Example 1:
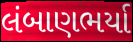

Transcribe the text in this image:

લંબાણભર્યા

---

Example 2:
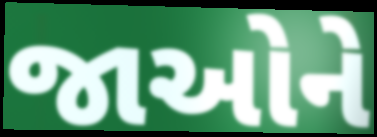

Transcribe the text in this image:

જાઓને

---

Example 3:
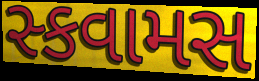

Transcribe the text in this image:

સ્કવામસ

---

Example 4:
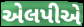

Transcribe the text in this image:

એલપીએ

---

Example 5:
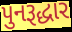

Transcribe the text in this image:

પુનરૂદ્ધાર